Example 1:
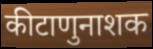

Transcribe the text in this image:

कीटाणुनाशक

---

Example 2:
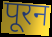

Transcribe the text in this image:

पूरन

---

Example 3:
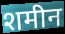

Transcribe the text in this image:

शमीन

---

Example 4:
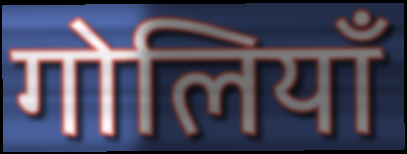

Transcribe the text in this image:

गोलियाँ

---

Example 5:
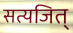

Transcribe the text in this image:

सत्यजित्